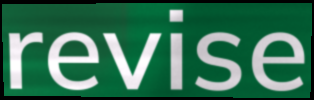
revise